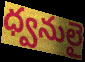
ధ్వనులై